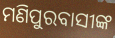
ମଣିପୁରବାସୀଙ୍କ